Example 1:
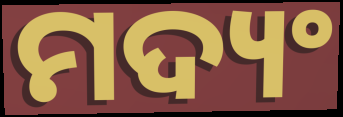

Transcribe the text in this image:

ମଦ୍ୟଂ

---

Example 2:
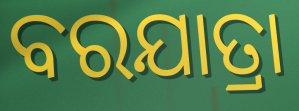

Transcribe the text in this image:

ବରଯାତ୍ରା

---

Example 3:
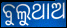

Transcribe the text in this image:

ବୁଲୁଥାଅ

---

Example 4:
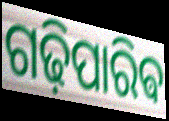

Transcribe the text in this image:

ଗଢ଼ିପାରିଵ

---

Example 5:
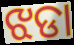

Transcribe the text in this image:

ଝଡା